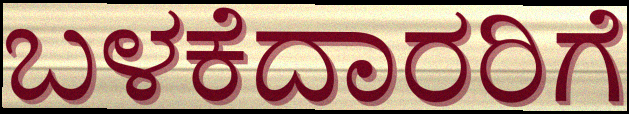
ಬಳಕೆದಾರರಿಗೆ